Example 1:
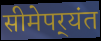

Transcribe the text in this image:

सीमेपर्यंत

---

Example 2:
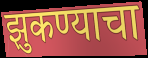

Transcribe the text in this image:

झुकण्याचा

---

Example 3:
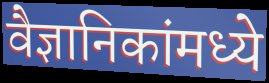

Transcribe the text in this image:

वैज्ञानिकांमध्ये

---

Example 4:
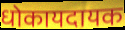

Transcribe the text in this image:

धोकायदायक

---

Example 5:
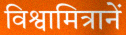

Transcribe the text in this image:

विश्वामित्रानें